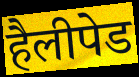
हैलीपेड